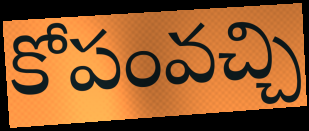
కోపంవచ్చి